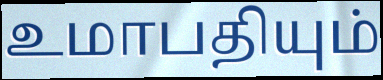
உமாபதியும்